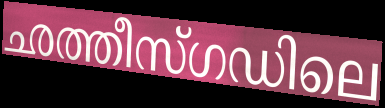
ഛത്തീസ്ഗഡിലെ